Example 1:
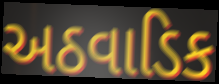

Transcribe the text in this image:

અઠવાડિક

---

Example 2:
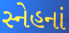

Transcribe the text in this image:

સ્નેહનાં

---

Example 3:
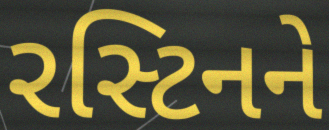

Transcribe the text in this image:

રસ્ટિનને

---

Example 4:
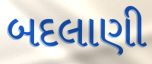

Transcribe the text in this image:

બદલાણી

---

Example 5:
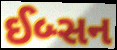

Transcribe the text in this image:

ઈબ્સન